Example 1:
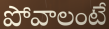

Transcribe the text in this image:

పోవాలంటే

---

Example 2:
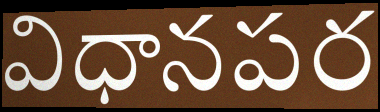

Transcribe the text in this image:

విధానపర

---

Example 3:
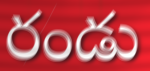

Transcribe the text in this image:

రండు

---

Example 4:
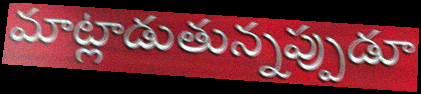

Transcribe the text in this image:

మాట్లాడుతున్నప్పుడూ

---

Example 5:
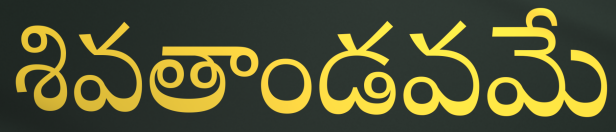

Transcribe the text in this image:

శివతాండవమే